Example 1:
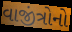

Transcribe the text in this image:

વાજીંત્રોનો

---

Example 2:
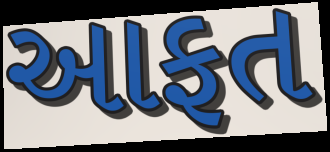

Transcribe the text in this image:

આફત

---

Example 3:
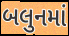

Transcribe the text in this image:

બલુનમાં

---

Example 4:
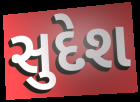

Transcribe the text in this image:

સુદેશ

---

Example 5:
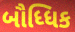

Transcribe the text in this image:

બૌધ્ધિક